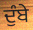
ਦੁੰਬੇ